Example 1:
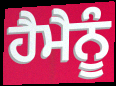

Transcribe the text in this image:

ਹੈਮੈਨੂੰ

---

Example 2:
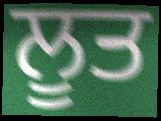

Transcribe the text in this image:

ਲੂਤ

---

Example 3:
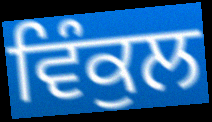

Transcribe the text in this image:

ਵਿੰਕੁਲ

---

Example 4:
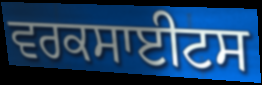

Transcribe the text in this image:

ਵਰਕਸਾਈਟਸ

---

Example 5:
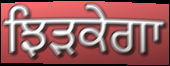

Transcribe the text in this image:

ਝਿੜਕੇਗਾ